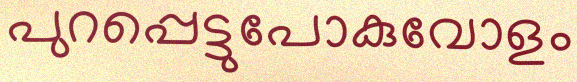
പുറപ്പെട്ടുപോകുവോളം